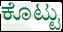
ಕೊಟ್ಟು